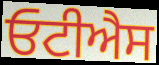
ਓਟੀਐਸ